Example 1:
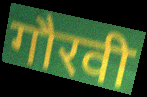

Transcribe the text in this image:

गौरवी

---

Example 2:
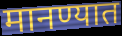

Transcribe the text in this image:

मानण्यात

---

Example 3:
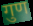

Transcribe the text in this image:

गुण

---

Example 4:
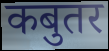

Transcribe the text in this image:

कबुतर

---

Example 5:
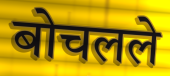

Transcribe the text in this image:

बोचलले